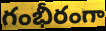
గంభీరంగా